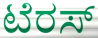
ಟೆರಸ್